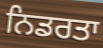
ਨਿਡਰਤਾ